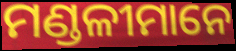
ମଣ୍ଡଳୀମାନେ